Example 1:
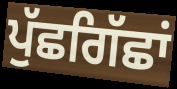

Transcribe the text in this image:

ਪੁੱਛਗਿੱਛਾਂ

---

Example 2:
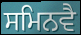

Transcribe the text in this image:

ਸਮਿਨਵੈ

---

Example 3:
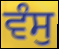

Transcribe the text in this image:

ਵੰਸੁ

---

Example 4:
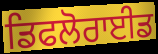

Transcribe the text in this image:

ਡਿਫਲੋਰਾਈਡ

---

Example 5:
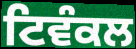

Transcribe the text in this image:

ਟਿਵੰਕਲ